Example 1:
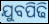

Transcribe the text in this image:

ଯୁବପିଢି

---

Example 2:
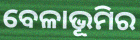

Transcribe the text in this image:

ବେଳାଭୂମିର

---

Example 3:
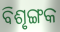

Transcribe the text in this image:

ବିଶୃଙ୍ଗକ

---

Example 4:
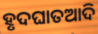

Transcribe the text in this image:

ହୃଦଘାତଆଦି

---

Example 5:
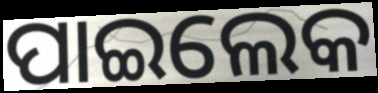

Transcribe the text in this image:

ପାଇଲେକ